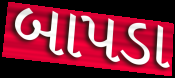
બાપડા